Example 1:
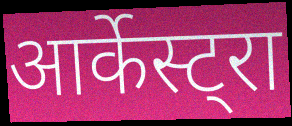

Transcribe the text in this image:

आर्केस्ट्रा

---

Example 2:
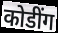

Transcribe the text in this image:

कोडींग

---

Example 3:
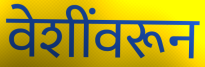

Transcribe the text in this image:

वेशींवरून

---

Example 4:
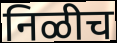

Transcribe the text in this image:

निळीच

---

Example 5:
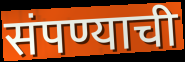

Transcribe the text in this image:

संपण्याची